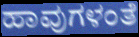
ಹಾವುಗಳಂತೆ